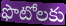
ఫొటోలకు